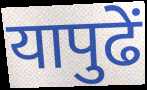
यापुढें